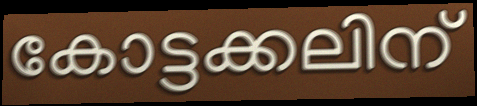
കോട്ടക്കലിന്